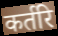
कर्तरि